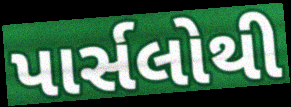
પાર્સલોથી